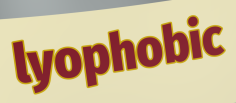
lyophobic